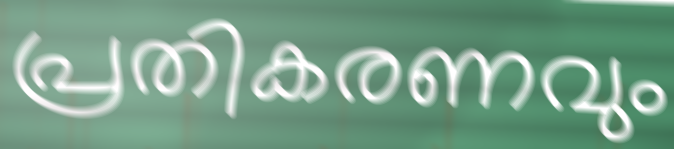
പ്രതികരണവും